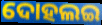
ଦୋହଲଇ